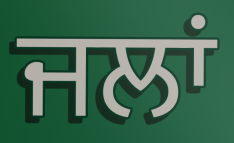
ਜਲਾਂ